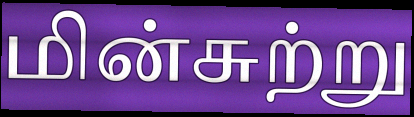
மின்சுற்று